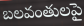
బలవంతులపై